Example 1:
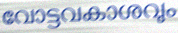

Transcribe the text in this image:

വോട്ടവകാശവും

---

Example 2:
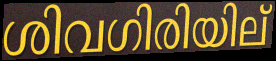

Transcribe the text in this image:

ശിവഗിരിയില്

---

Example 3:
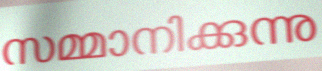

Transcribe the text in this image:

സമ്മാനിക്കുന്നു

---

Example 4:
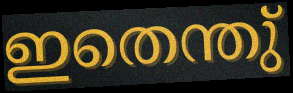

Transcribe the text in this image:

ഇതെന്തു്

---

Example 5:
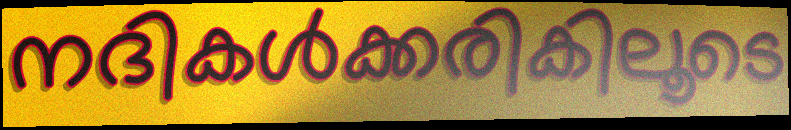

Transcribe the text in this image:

നദികൾക്കരികിലൂടെ